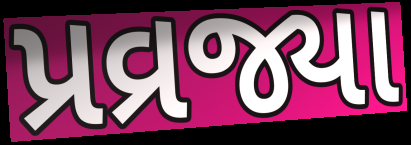
પ્રવ્રજ્યા